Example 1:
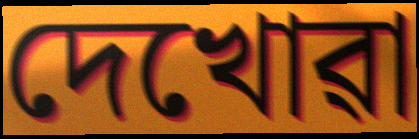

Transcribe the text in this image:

দেখোৱা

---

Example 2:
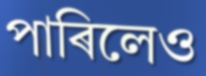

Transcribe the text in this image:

পাৰিলেও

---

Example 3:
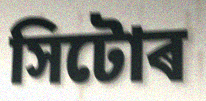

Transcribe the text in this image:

সিটোৰ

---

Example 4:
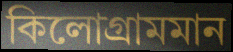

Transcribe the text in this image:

কিলোগ্ৰামমান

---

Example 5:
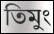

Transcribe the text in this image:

তিমুং